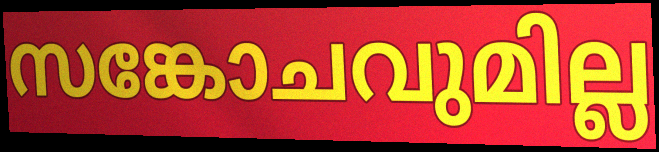
സങ്കോചവുമില്ല